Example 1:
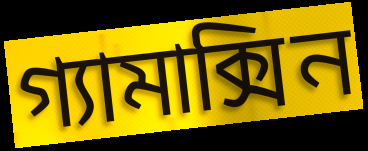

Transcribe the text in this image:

গ্যামাক্সিন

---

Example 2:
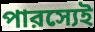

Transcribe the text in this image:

পারস্যেই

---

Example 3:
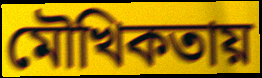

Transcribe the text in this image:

মৌখিকতায়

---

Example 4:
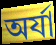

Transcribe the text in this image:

অর্যা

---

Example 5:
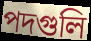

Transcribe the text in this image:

পদগুলি